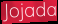
Jojada